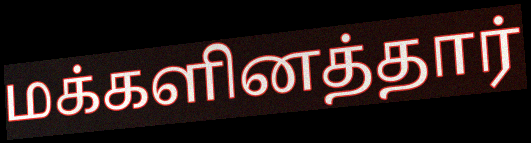
மக்களினத்தார்